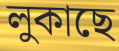
লুকাছে